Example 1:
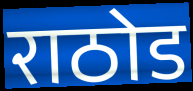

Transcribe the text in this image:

राठोड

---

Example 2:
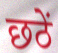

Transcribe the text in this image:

छठें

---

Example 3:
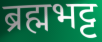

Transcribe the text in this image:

ब्रह्मभट्ट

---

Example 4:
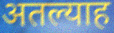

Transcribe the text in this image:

अतल्याह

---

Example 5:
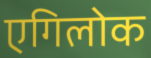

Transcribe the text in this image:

एगिलोक